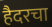
हैदरचा